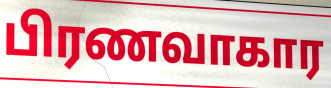
பிரணவாகார